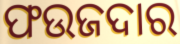
ଫଉଜଦାର